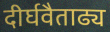
दीर्घवैताढ्य